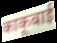
काकूबाई